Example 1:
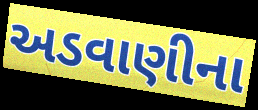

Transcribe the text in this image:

અડવાણીના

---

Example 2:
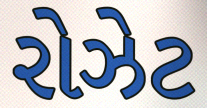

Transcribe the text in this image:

રોઝેટ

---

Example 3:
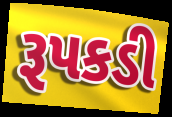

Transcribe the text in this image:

રૂપકડી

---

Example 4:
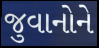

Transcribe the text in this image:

જુવાનોને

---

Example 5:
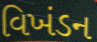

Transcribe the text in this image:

વિખંડન